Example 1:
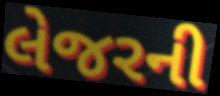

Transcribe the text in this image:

લેજરની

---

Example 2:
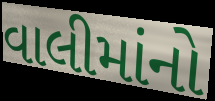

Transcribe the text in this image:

વાલીમાંનો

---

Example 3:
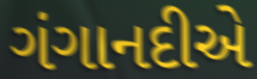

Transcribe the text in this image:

ગંગાનદીએ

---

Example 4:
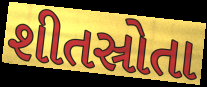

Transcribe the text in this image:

શીતસ્રોતા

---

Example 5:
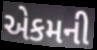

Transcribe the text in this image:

એકમની